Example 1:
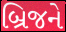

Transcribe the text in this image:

બ્રિજને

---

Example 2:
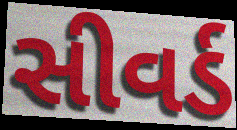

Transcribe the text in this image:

સીવર્ડ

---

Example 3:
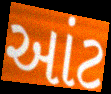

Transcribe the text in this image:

આંટ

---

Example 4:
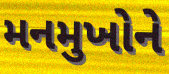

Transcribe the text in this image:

મનમુખોને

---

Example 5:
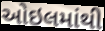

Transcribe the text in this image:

ઓઇલમાંથી